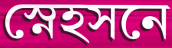
স্নেহসনে